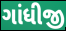
ગાંધીજી